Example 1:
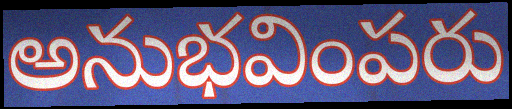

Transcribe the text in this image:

అనుభవింపరు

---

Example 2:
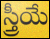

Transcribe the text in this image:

స్త్రీయే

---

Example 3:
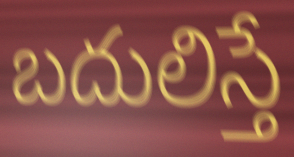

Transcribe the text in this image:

బదులిస్తే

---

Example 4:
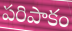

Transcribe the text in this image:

పరిపాకం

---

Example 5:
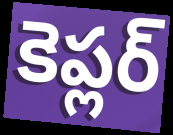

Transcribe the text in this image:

కెప్లర్